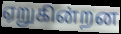
ஏறுகின்றன